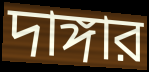
দাঙ্গার